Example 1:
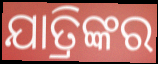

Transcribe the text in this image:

ଯାତ୍ରିଙ୍କର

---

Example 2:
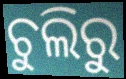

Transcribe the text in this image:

ଚୁଲିରୁ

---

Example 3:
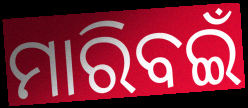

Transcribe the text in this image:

ମାରିବଇଁ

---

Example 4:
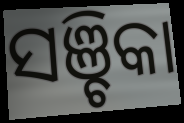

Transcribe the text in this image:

ସଞ୍ଚିକା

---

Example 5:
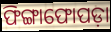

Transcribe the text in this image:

ଫିଙ୍ଗାଫୋପଡ଼ା